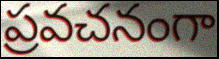
ప్రవచనంగా